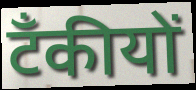
टँकीयों